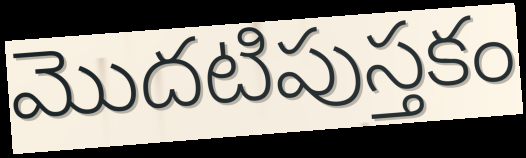
మొదటిపుస్తకం